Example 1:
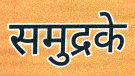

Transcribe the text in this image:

समुद्रके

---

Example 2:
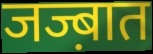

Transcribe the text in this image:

जज्ब़ात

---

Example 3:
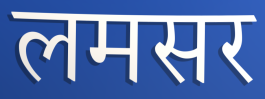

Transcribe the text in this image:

लमसर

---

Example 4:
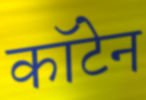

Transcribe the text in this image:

कॉटेन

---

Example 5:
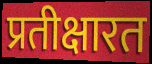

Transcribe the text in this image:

प्रतीक्षारत